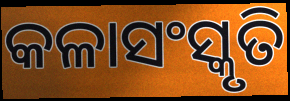
କଳାସଂସ୍କୃତି